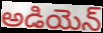
అడియెన్